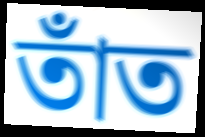
তাঁত